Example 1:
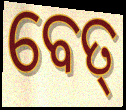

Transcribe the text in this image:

ବେତ୍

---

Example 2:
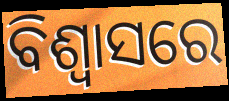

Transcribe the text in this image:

ବିଶ୍ବାସରେ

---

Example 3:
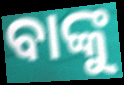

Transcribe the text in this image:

ବାଙ୍କୁ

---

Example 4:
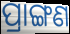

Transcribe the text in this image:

ପ୍ରାଙ୍ଗଣ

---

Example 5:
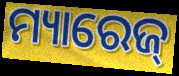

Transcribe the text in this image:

ମ୍ୟାରେଜ୍